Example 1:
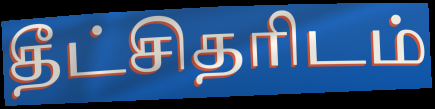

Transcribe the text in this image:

தீட்சிதரிடம்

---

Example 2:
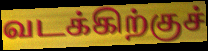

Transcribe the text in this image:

வடக்கிற்குச்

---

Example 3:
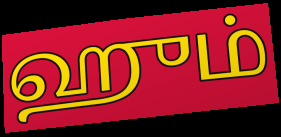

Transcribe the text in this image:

ஹும்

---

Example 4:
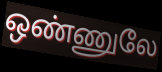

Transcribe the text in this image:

ஒண்ணுலே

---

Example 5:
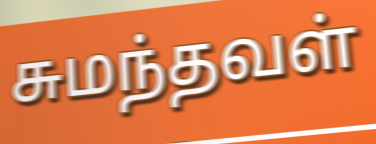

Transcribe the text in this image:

சுமந்தவள்